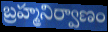
బ్రహ్మనిర్వాణం